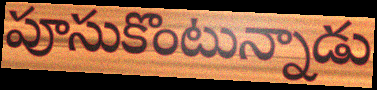
పూసుకొంటున్నాడు